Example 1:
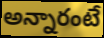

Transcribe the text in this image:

అన్నారంటే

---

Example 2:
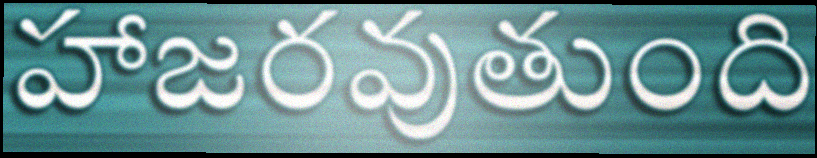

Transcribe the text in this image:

హాజరవుతుంది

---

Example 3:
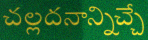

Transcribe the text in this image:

చల్లదనాన్నిచ్చే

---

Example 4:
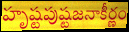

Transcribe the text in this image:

హృష్టపుష్టజనాకీర్ణం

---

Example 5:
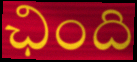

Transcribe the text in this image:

ఛింది